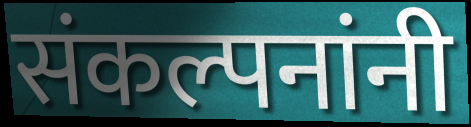
संकल्पनांनी